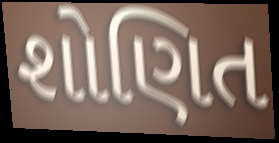
શોણિત